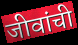
जीवांची